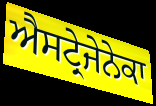
ਐਸਟ੍ਰੇਜੇਨੇਕਾ